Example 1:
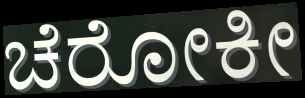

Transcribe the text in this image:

ಚೆರೋಕೀ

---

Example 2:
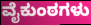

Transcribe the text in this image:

ವೈಕುಂಠಗಳು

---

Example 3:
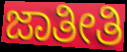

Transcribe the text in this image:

ಜಾತೀತಿ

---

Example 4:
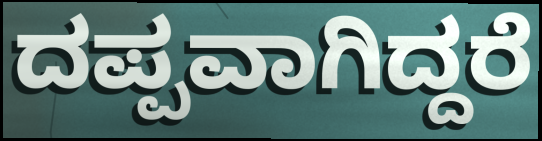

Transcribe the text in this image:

ದಪ್ಪವಾಗಿದ್ದರೆ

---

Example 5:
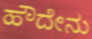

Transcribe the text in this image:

ಹೌದೇನು